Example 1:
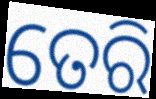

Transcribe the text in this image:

ତେରି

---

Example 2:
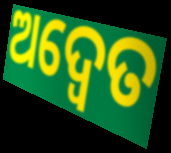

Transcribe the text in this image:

ଅଦ୍ଵେତ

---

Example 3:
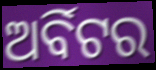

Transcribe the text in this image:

ଅର୍ବିଟର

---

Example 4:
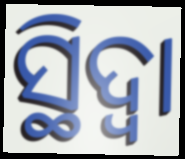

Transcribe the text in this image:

ସ୍ଥିଦ୍ଵା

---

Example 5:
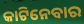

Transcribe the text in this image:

କାଟିନେବାର